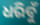
ଧରିବୁଁ